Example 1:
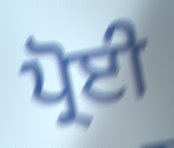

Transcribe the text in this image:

ਪ੍ਰੋਈ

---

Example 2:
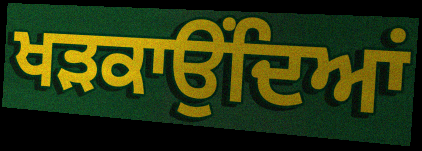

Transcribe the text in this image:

ਖੜਕਾਉਂਦਿਆਂ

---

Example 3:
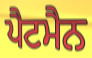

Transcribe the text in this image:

ਪੈਟਮੈਨ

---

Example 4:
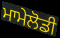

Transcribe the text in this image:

ਮਾਮੇਲੋਡੀ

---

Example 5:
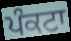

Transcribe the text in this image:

ਪੰਕਟਾ